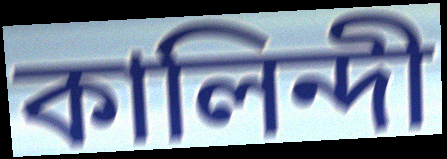
কালিন্দী